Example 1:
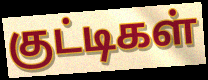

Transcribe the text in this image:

குட்டிகள்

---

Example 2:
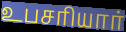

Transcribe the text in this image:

உபசரியார்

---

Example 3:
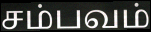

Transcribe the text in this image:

சம்பவம்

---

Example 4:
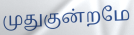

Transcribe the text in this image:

முதுகுன்றமே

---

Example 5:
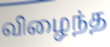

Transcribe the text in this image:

விழைந்த